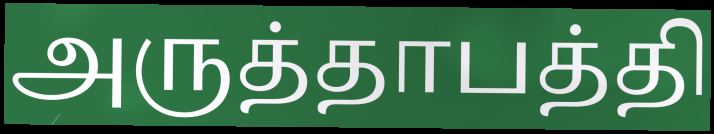
அருத்தாபத்தி